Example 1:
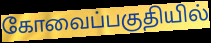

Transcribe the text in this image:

கோவைப்பகுதியில்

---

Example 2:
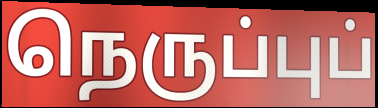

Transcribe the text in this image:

நெருப்புப்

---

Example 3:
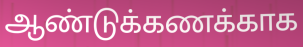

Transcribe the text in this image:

ஆண்டுக்கணக்காக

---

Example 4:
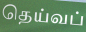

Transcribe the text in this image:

தெய்வப்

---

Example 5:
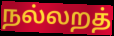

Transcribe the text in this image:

நல்லறத்